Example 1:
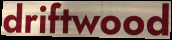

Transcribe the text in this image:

driftwood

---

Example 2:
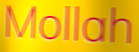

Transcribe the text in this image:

Mollah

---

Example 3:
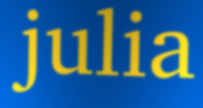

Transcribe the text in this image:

julia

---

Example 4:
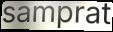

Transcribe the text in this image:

samprat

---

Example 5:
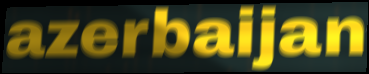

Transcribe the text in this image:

azerbaijan